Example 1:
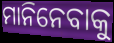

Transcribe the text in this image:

ମାନିନେବାକୁ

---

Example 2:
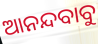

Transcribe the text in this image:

ଆନନ୍ଦବାବୁ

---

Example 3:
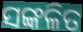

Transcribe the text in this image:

ସଙ୍କଳିତ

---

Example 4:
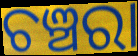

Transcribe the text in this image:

ଚଞ୍ଚରା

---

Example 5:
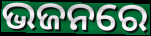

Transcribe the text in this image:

ଭଜନରେ